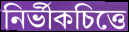
নির্ভীকচিত্তে